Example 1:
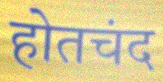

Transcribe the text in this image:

होतचंद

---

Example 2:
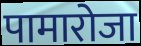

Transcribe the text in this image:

पामारोजा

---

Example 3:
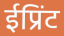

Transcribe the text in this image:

ईप्रिंट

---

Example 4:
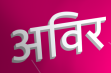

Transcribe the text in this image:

अविर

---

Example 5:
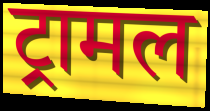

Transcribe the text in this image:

ट्रामल